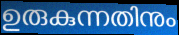
ഉരുകുന്നതിനും